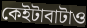
কেইটাবাটাও